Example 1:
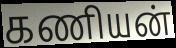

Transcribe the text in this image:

கணியன்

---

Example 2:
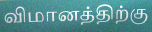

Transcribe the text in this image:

விமானத்திற்கு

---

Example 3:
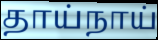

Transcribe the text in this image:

தாய்நாய்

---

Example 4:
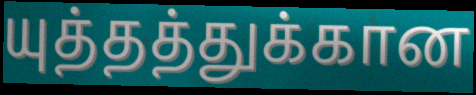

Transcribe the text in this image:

யுத்தத்துக்கான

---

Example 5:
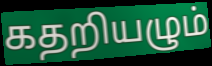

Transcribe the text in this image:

கதறியழும்